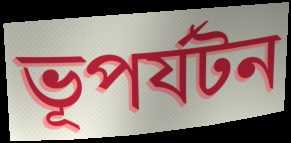
ভূপর্যটন